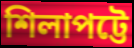
শিলাপট্টে